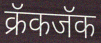
क्रॅकजॅक